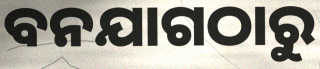
ବନଯାଗଠାରୁ